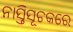
ନାସ୍ତିସୂଚକରେ